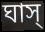
ঘাস্